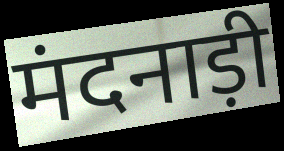
मंदनाड़ी